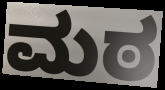
ಮಠ